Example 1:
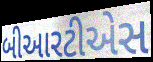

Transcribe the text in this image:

બીઆરટીએસ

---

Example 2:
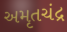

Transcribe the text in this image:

અમૃતચંદ્ર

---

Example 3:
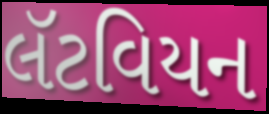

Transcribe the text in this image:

લૅટવિયન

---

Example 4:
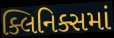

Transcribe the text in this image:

ક્લિનિક્સમાં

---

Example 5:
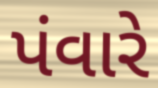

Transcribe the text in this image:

પંવારે